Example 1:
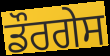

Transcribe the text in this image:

ਡੌਰਗੇਸ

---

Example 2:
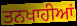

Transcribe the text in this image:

ਤਨਖਾਹੀਆਂ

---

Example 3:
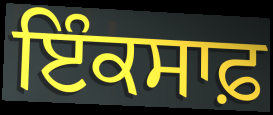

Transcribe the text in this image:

ਇੰਕਸਾਫ਼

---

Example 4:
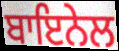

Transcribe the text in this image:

ਬਾਇਨੇਲ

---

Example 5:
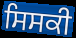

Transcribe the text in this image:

ਸਿਸਕੀ